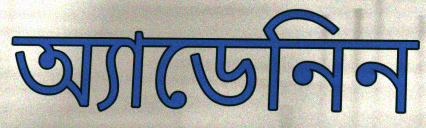
অ্যাডেনিন